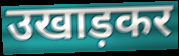
उखाड़कर